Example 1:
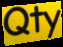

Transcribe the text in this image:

Qty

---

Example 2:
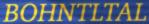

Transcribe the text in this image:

BOHNTLTAL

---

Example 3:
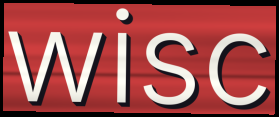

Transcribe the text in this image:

wisc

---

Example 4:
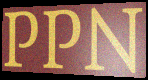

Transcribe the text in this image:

PPN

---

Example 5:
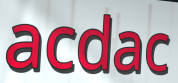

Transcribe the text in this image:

acdac